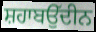
ਸ਼ਹਾਬਉੱਦੀਨ